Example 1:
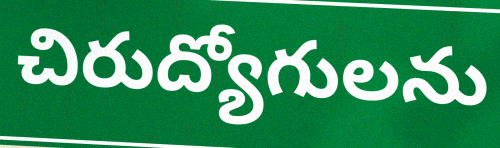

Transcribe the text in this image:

చిరుద్యోగులను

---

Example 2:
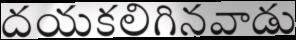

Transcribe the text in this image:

దయకలిగినవాడు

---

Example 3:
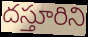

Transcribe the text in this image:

దస్తూరిని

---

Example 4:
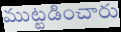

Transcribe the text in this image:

ముట్టడించారు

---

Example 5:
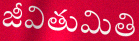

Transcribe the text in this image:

జీవితుమితి